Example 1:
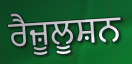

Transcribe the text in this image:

ਰੈਜ਼ੂਲੂਸ਼ਨ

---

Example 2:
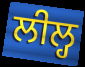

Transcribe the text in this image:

ਲੀਲ੍ਹ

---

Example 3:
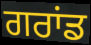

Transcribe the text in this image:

ਗਰਾਂਡ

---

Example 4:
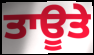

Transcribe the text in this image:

ਤਾਊਤੇ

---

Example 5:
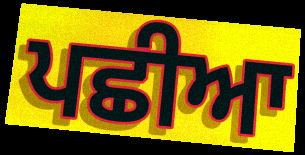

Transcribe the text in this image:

ਪਛੀਆ